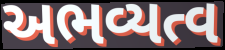
અભવ્યત્વ